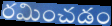
రమించడం